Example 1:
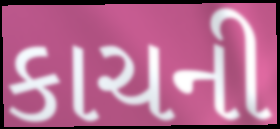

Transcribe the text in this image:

કાચની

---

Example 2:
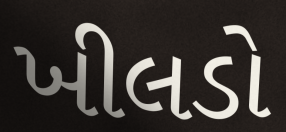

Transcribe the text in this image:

ખીલડો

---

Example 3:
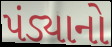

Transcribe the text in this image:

પંડ્યાનો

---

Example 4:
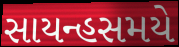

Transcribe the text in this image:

સાયન્હસમયે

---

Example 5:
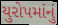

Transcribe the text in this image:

યુરોપમાંનું